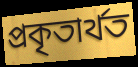
প্ৰকৃতাৰ্থত